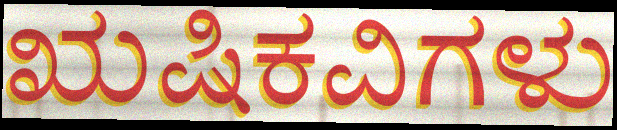
ಋಷಿಕವಿಗಳು